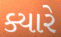
ક્‍યારે